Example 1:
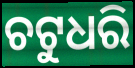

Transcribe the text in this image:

ଚଟୁଧରି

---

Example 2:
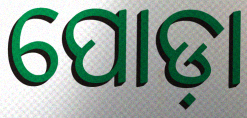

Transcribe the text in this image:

ପୋଡ଼ା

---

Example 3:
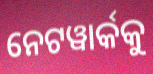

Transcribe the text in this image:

ନେଟୱାର୍କକୁ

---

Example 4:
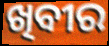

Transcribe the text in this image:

ଖିବୀର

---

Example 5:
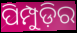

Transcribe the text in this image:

ପିମ୍ପୁଡ଼ିର